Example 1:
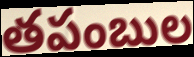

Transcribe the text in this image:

తపంబుల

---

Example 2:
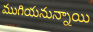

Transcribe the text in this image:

ముగియనున్నాయి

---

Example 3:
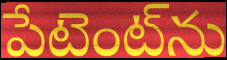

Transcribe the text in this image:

పేటెంట్‌ను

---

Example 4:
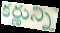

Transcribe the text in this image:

కర్ణున్ని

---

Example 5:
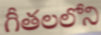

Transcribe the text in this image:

గీతలలోని